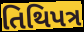
તિથિપત્ર